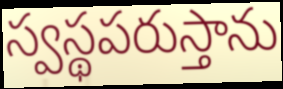
స్వస్థపరుస్తాను